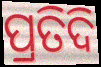
ପ୍ରତିଦି